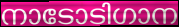
നാടോടിഗാന